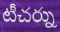
టీచర్ను